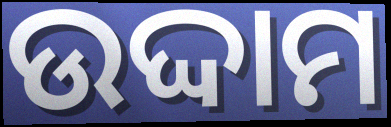
ଉଦ୍ଦାମ